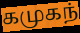
கமுகந்